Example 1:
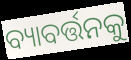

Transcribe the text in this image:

ବ୍ୟାବର୍ତ୍ତନକୁ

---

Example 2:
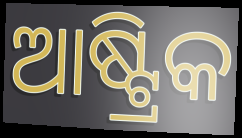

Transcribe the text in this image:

ଆଷ୍ଟ୍ରିକ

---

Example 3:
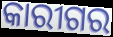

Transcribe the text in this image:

କାରୀଗର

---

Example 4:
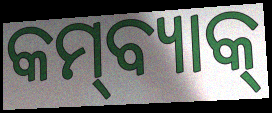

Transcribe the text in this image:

କମ୍‌ବ୍ୟାକ୍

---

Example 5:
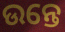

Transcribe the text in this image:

ଉନ୍ତେ